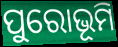
ପୁରୋଭୂମି